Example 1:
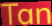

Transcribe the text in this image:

Tan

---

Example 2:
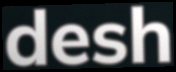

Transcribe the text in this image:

desh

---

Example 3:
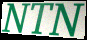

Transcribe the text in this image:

NTN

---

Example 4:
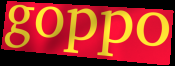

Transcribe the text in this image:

goppo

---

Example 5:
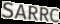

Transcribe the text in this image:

SARRC